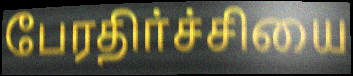
பேரதிர்ச்சியை